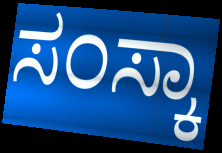
ಸಂಸ್ಕಾ